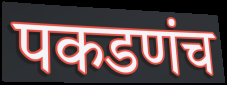
पकडणंच